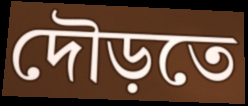
দৌড়তে